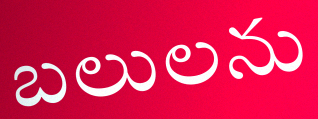
బలులను